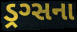
ડ્રગ્સના